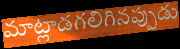
మాట్లాడగలిగినప్పుడు